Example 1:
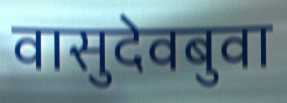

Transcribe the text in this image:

वासुदेवबुवा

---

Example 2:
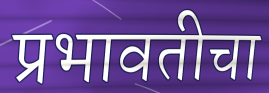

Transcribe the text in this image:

प्रभावतीचा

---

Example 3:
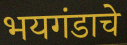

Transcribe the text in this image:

भयगंडाचे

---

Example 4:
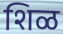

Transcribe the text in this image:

शिळ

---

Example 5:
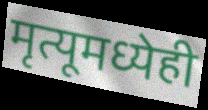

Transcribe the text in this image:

मृत्यूमध्येही